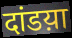
दांडय़ा